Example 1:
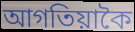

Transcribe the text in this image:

আগতিয়াকৈ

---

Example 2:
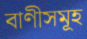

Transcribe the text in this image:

বাণীসমূহ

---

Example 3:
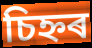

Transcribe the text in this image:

চিহ্নৰ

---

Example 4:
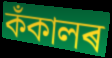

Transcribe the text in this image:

কঁকালৰ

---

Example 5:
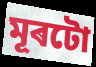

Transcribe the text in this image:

মূৰটো